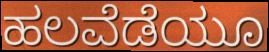
ಹಲವೆಡೆಯೂ